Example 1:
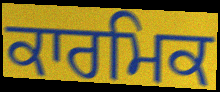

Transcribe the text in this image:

ਕਾਰਮਿਕ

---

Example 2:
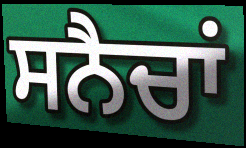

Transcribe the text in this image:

ਸਨੈਚਾਂ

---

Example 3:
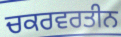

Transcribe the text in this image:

ਚਕਰਵਰਤੀਨ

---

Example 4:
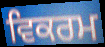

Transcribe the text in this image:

ਵਿਕਰਮ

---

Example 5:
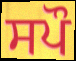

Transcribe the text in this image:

ਸਪੌ